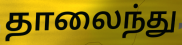
தாலைந்து